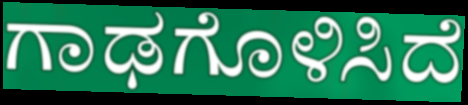
ಗಾಢಗೊಳಿಸಿದೆ